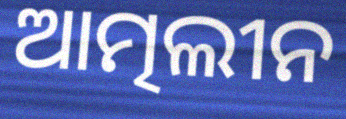
ଆତ୍ମଲୀନ